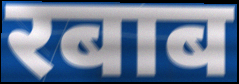
रबाब